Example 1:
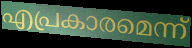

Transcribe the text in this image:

എപ്രകാരമെന്ന്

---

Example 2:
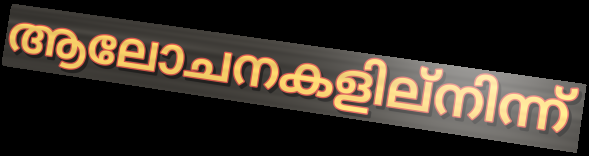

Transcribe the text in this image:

ആലോചനകളില്നിന്ന്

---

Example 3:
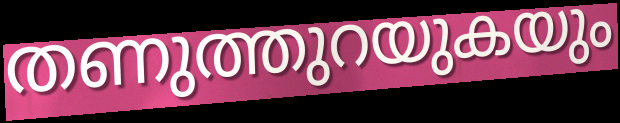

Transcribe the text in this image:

തണുത്തുറയുകയും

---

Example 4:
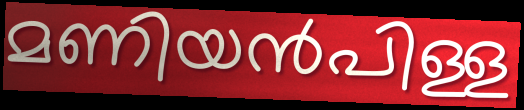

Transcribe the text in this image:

മണിയൻപിള്ള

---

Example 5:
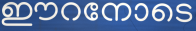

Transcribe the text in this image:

ഈറനോടെ